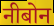
नीबोन